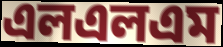
এলএলএম